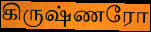
கிருஷ்ணரோ